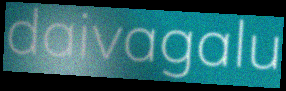
daivagalu